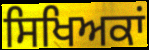
ਸਿਖਿਅਕਾਂ